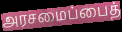
அரசமைப்பைத்